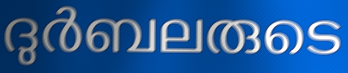
ദുർബലരുടെ